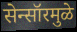
सेन्सॉरमुळे